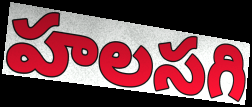
హలసగి